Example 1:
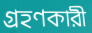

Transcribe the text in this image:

গ্রহণকারী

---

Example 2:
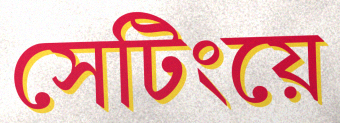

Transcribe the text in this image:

সেটিংয়ে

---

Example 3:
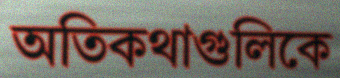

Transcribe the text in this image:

অতিকথাগুলিকে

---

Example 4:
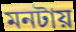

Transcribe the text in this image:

মনটায়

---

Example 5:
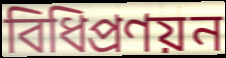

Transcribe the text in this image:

বিধিপ্রণয়ন